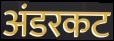
अंडरकट